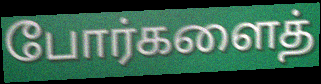
போர்களைத்